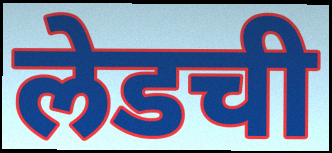
लेडची